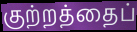
குற்றத்தைப்